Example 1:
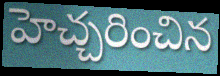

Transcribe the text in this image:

హెచ్చరించిన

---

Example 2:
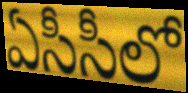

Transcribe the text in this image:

ఏసీసీలో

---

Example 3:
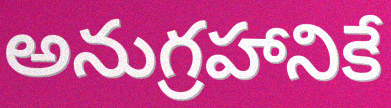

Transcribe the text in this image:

అనుగ్రహానికే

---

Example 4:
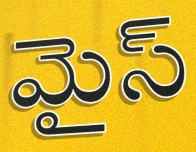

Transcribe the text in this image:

మైస్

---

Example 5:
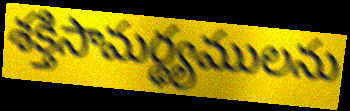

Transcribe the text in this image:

శక్తిసామర్థ్యములను